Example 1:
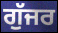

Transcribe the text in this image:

ਗੁੱਜਰ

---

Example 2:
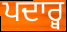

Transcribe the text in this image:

ਪਦਾਰ੍ਥ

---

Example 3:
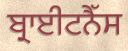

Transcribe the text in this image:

ਬ੍ਰਾਈਟਨੈੱਸ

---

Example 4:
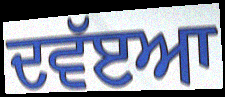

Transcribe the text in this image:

ਦਵੱੲਆ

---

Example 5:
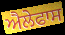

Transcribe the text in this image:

ਐਲੇਫਾਸ